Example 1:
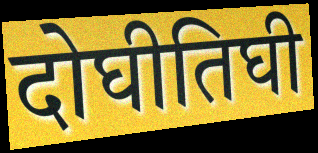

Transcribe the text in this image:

दोघीतिघी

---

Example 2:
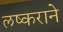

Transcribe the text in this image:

लष्कराने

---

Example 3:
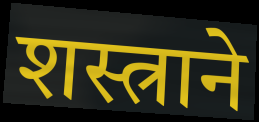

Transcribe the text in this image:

शस्त्राने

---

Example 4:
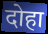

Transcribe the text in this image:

दोहा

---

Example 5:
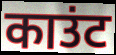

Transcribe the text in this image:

काउंट